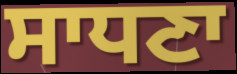
ਸਾਧਣਾ